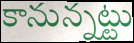
కానున్నట్టు